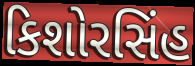
કિશોરસિંહ